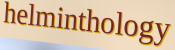
helminthology